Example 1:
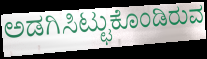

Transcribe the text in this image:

ಅಡಗಿಸಿಟ್ಟುಕೊಂಡಿರುವ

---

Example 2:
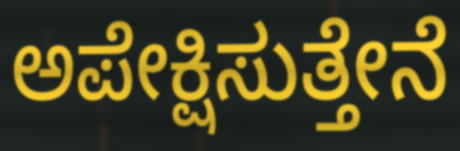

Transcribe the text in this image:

ಅಪೇಕ್ಷಿಸುತ್ತೇನೆ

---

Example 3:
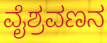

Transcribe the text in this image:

ವೈಶ್ರವಣನ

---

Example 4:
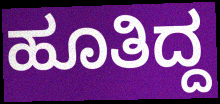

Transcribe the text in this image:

ಹೂತಿದ್ದ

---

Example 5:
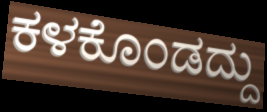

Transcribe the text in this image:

ಕಳಕೊಂಡದ್ದು